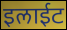
इलाईट